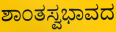
ಶಾಂತಸ್ವಭಾವದ